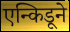
एन्किडूने